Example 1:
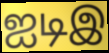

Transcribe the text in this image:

ஐடிஇ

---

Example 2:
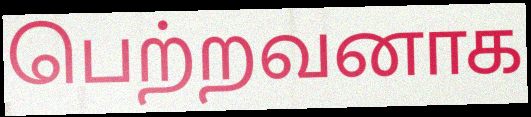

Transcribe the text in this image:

பெற்றவனாக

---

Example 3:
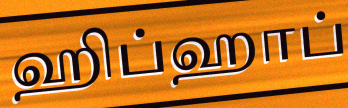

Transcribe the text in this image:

ஹிப்ஹாப்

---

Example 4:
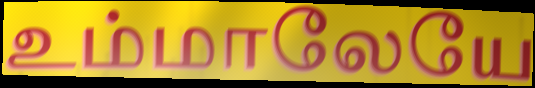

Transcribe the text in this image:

உம்மாலேயே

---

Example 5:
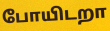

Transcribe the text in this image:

போயிடறா